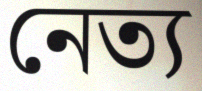
নেত্য